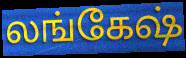
லங்கேஷ்